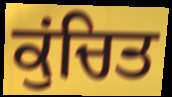
ਕੁਂਚਿਤ